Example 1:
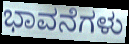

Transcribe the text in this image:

ಭಾವನೆಗಳು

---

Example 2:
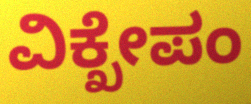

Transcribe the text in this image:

ವಿಕ್ಖೇಪಂ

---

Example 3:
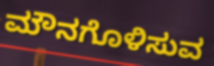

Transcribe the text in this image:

ಮೌನಗೊಳಿಸುವ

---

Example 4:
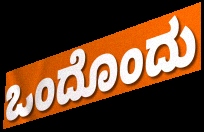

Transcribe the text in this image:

ಒಂದೊಂದು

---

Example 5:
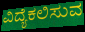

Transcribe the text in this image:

ವಿದ್ಯೆಕಲಿಸುವ